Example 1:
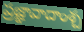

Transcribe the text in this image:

ప్రజ్ఞావాదాంశ్చ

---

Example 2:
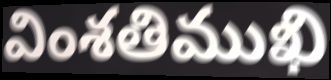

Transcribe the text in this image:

వింశతిముఖి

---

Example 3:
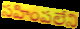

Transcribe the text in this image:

సహింపలేని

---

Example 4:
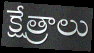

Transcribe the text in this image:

క్షేత్రాలు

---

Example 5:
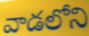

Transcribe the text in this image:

వాడలోని